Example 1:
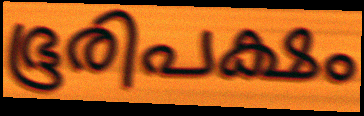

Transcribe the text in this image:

ഭൂരിപക്ഷം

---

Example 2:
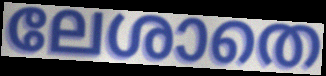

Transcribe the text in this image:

ലേശാതെ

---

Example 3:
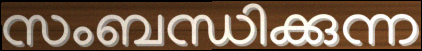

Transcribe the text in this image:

സംബന്ധിക്കുന്ന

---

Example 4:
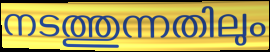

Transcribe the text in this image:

നടത്തുന്നതിലും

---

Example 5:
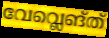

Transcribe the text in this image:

വേവ്ലെങ്ത്